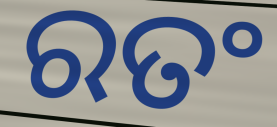
ରତଂ